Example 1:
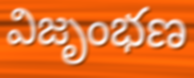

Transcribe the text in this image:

విజృంభణ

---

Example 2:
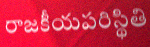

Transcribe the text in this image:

రాజకీయపరిస్థితి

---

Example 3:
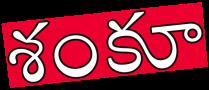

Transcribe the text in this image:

శంకూ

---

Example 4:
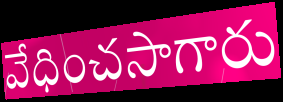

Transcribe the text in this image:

వేధించసాగారు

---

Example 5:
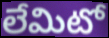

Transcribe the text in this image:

లేమిటో